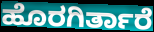
ಹೊರಗಿರ್ತಾರೆ